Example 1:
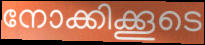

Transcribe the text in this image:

നോക്കിക്കൂടെ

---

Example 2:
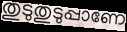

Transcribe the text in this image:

തുടുതുടുപ്പാണേ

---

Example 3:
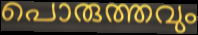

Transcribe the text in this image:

പൊരുത്തവും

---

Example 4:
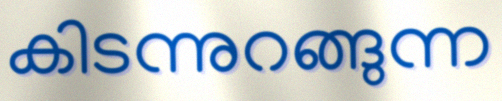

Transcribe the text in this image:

കിടന്നുറങ്ങുന്ന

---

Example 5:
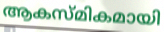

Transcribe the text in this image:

ആകസ്മികമായി